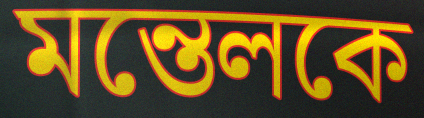
মন্তেলকে